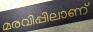
മരവിപ്പിലാണ്